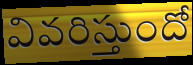
వివరిస్తుందో